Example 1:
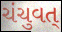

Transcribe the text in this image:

ચંચુવત્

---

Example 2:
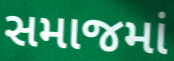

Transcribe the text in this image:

સમાજમાં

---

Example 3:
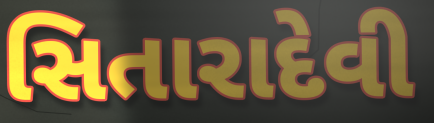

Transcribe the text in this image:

સિતારાદેવી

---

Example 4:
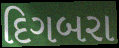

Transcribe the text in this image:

દિગબરા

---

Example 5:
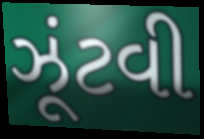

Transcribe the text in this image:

ઝૂંટવી